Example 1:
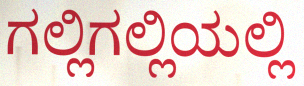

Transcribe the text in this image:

ಗಲ್ಲಿಗಲ್ಲಿಯಲ್ಲಿ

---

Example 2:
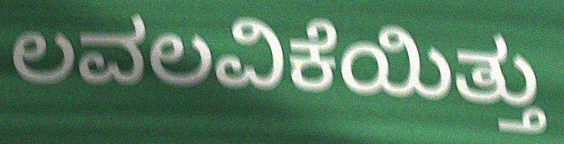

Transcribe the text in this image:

ಲವಲವಿಕೆಯಿತ್ತು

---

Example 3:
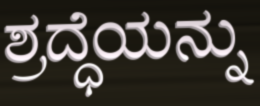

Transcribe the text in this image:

ಶ್ರದ್ಧೆಯನ್ನು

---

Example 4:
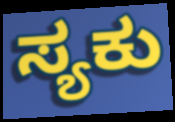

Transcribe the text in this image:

ಸ್ಯಕು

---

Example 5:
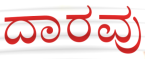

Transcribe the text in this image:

ದಾರವು